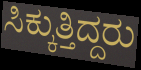
ಸಿಕ್ಕುತ್ತಿದ್ದರು